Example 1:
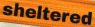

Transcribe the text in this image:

sheltered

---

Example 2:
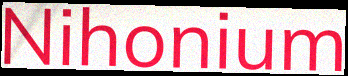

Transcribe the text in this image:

Nihonium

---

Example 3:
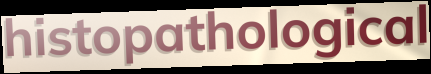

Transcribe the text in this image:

histopathological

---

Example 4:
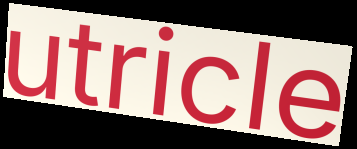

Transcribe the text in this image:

utricle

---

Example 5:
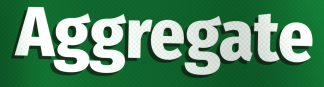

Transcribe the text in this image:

Aggregate